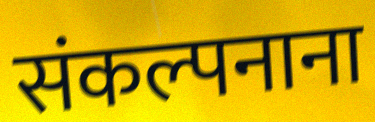
संकल्पनाना